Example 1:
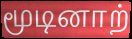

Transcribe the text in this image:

மூடினாற்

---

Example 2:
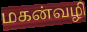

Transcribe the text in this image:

மகன்வழி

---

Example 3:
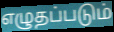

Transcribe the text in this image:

எழுதப்படும்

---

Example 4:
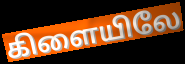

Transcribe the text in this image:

கிளையிலே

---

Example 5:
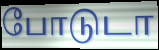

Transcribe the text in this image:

போடுடா